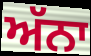
ਅੱਨਾ